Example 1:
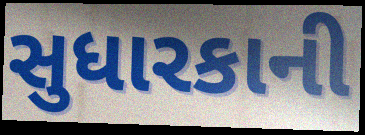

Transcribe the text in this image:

સુધારકાની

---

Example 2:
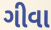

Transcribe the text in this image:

ગીવા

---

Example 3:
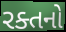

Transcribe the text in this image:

રક્તનો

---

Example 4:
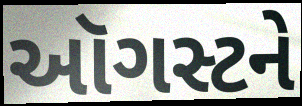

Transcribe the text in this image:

ઑગસ્ટને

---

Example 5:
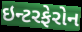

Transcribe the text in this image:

ઇન્ટરફેરોન